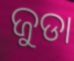
ଜୁଡା